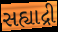
સહ્યાદ્રી